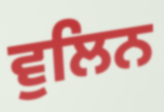
ਵੁਲਿਨ